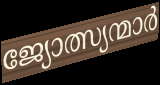
ജ്യോത്സ്യന്മാർ